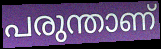
പരുന്താണ്